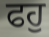
ਫਹੁ